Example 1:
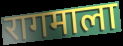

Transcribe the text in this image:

रागमाला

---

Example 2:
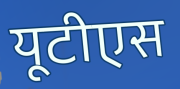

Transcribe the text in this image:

यूटीएस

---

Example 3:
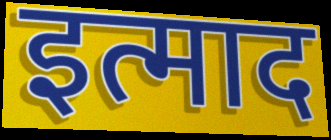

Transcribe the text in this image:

इत्माद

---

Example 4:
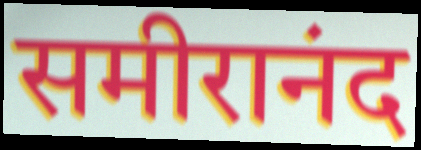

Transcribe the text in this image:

समीरानंद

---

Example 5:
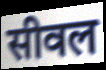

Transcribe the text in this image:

सीवल